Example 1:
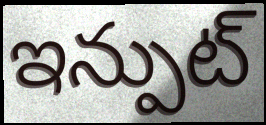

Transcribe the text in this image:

ఇన్పుట్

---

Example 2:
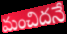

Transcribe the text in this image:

మంచిదనే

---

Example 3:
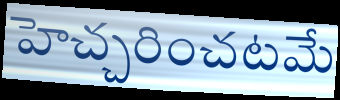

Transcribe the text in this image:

హెచ్చరించటమే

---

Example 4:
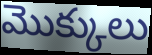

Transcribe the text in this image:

మొక్కులు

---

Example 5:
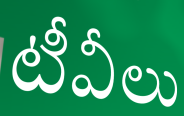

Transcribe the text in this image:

టీవీలు